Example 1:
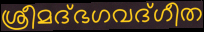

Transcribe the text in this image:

ശ്രീമദ്ഭഗവദ്ഗീത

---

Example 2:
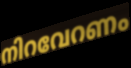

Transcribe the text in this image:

നിറവേറണം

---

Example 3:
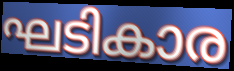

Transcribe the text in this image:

ഘടികാര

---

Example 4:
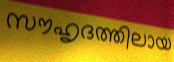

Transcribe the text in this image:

സൗഹൃദത്തിലായ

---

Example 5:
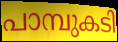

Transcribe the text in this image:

പാമ്പുകടി